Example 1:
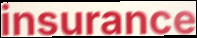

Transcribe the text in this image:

insurance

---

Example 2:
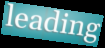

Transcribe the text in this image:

leading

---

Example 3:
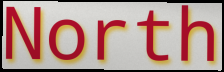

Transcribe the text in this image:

North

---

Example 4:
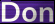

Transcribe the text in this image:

Don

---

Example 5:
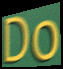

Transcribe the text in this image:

Do